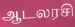
ஆடலரசி